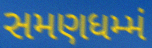
સમણધમ્મં